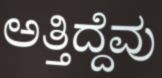
ಅತ್ತಿದ್ದೆವು